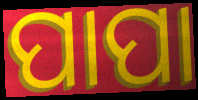
ପାପା